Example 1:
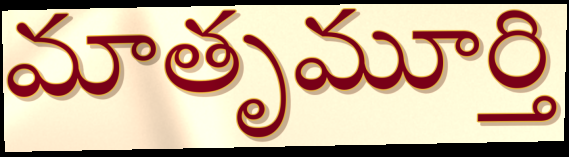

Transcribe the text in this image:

మాతృమూర్తి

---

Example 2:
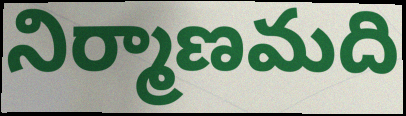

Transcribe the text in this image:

నిర్మాణమది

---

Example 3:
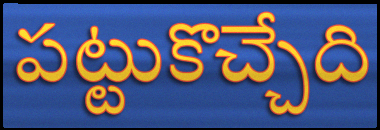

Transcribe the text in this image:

పట్టుకొచ్చేది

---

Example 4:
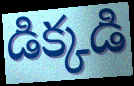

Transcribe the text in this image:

డిక్కడి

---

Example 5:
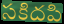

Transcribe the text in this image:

సకిదపి